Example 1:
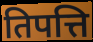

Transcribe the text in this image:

तिपत्ति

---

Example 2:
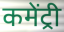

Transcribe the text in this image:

कमेंट्री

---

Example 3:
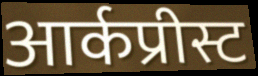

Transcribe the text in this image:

आर्कप्रीस्ट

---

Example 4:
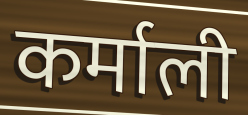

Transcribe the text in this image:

कर्माली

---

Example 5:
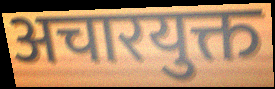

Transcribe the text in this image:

अचारयुक्त